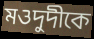
মওদুদীকে